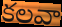
కలవా